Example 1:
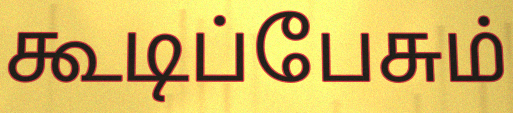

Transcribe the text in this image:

கூடிப்பேசும்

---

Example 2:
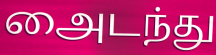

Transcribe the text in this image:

அைடந்து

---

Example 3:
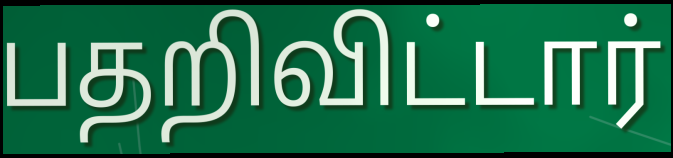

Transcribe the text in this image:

பதறிவிட்டார்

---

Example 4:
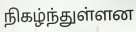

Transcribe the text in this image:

நிகழ்ந்துள்ளன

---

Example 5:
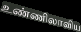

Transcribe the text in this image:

உண்ணிலாவிய